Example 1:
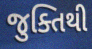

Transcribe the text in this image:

જુક્તિથી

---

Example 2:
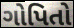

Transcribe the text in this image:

ગોપિતો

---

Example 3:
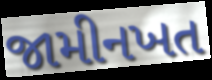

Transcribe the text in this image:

જામીનખત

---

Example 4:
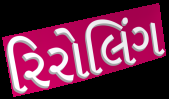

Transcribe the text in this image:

રિરોલિંગ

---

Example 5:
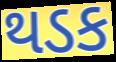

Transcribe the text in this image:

થડક